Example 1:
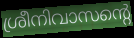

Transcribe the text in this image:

ശ്രീനിവാസന്റെ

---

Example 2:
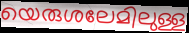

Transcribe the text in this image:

യെരുശലേമിലുള്ള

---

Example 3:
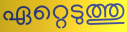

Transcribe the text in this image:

ഏറ്റെടുത്തു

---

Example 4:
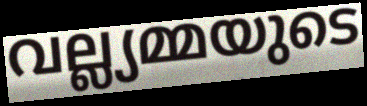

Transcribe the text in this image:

വല്ല്യമ്മയുടെ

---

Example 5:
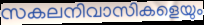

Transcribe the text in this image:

സകലനിവാസികളെയും